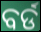
ବର୍ଡ